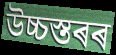
উচ্চস্তৰৰ